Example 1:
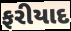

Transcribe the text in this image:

ફરીયાદ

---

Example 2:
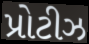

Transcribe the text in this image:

પ્રોટીઝ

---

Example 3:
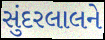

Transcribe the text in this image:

સુંદરલાલને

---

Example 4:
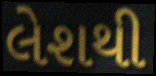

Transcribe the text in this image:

લેશથી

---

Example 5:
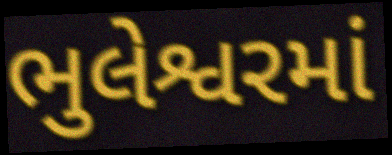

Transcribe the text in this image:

ભુલેશ્વરમાં